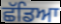
ਛੱਡਿਆ